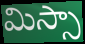
మిస్సా